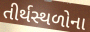
તીર્થસ્થળોના